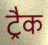
ट्रैक